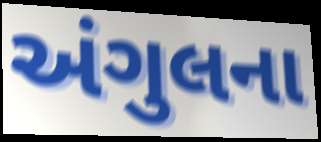
અંગુલના